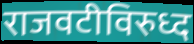
राजवटीविरुध्द